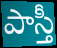
పాస్తీ